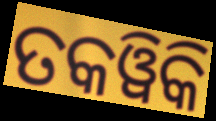
ତକୱିକି